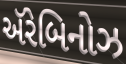
ઍરેબિનોઝ